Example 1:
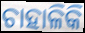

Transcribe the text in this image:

ଚାହାଳିକି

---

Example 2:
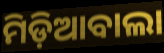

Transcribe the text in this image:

ମିଡ଼ିଆବାଲା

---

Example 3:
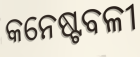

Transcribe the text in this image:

କନେଷ୍ଟବଳୀ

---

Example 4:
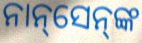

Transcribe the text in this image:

ନାନ୍‌ସେନ୍‌ଙ୍କ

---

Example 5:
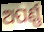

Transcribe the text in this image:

ଅପର୍ଣ୍ଣ